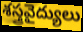
శస్త్రవైద్యులు